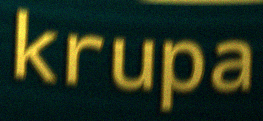
krupa